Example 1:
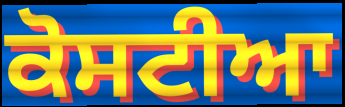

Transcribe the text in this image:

ਕੋਸਟੀਆ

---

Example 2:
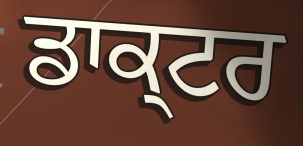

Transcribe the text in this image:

ਡਾਕ੍ਟਰ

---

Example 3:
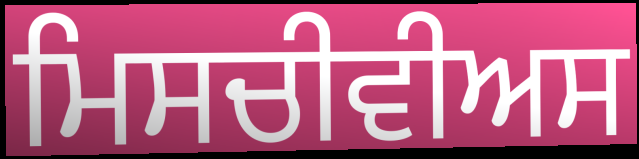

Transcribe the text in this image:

ਮਿਸਚੀਵੀਅਸ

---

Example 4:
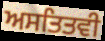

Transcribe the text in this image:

ਅਸਤਿਤਵੀ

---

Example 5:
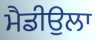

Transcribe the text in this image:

ਮੈਡੀਉਲਾ